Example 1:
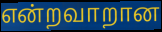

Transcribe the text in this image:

என்றவாறான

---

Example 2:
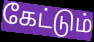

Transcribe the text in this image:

கேட்டும்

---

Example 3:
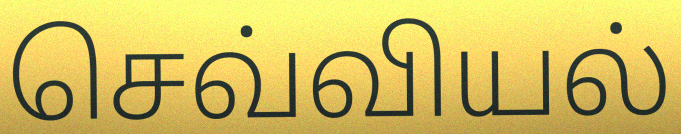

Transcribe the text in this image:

செவ்வியல்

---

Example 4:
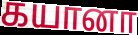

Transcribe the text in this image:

கயானா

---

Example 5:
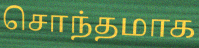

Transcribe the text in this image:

சொந்தமாக